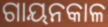
ଗାୟନକାଳ